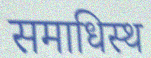
समाधिस्थ